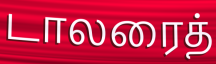
டாலரைத்